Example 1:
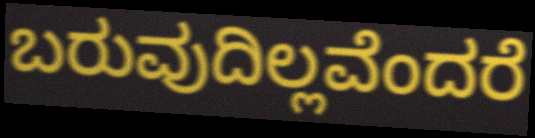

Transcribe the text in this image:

ಬರುವುದಿಲ್ಲವೆಂದರೆ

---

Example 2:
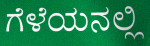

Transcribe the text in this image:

ಗೆಳೆಯನಲ್ಲಿ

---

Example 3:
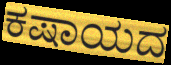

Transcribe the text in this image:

ಕಷಾಯದ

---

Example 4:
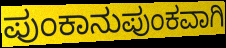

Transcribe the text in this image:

ಪುಂಕಾನುಪುಂಕವಾಗಿ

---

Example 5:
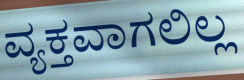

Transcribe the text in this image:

ವ್ಯಕ್ತವಾಗಲಿಲ್ಲ